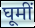
घूमीं